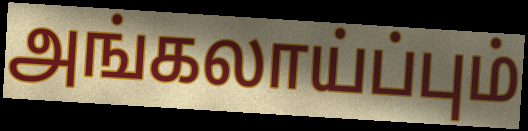
அங்கலாய்ப்பும்